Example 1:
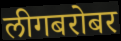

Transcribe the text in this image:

लीगबरोबर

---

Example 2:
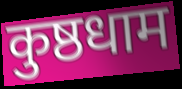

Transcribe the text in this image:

कुष्ठधाम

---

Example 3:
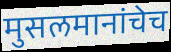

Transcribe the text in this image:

मुसलमानांचेच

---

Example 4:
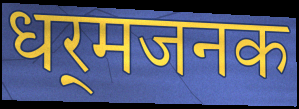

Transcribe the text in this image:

धर्मजनक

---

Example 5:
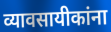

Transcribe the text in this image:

व्यावसायीकांना